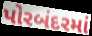
પોરબંદરમાં